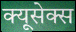
क्यूसेक्स